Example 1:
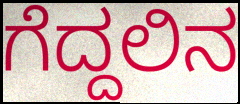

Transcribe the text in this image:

ಗೆದ್ದಲಿನ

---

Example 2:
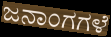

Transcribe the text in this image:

ಜನಾಂಗಗಳೆ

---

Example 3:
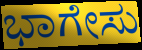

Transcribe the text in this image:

ಭಾಗೇಸು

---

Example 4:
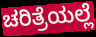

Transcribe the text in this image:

ಚರಿತ್ರೆಯಲ್ಲೆ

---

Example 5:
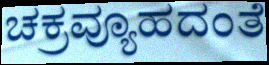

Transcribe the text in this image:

ಚಕ್ರವ್ಯೂಹದಂತೆ